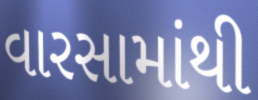
વારસામાંથી